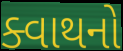
ક્વાથનો